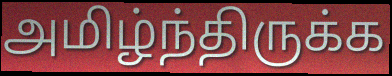
அமிழ்ந்திருக்க